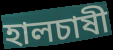
হালচাষী